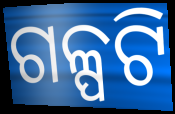
ଗଳ୍ପଟି